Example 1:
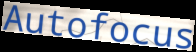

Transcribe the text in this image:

Autofocus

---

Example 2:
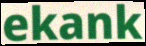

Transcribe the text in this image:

ekank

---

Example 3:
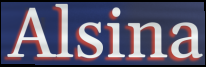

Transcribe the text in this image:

Alsina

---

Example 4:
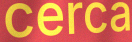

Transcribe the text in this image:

cerca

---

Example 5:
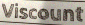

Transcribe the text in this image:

Viscount